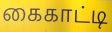
கைகாட்டி